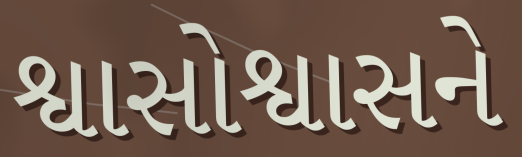
શ્વાસોશ્વાસને